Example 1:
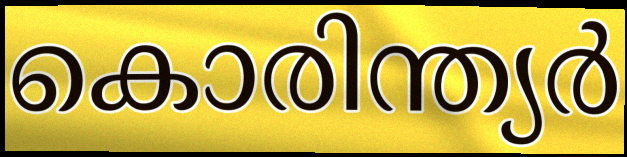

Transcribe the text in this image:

കൊരിന്ത്യർ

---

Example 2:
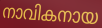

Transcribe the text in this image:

നാവികനായ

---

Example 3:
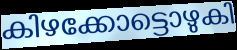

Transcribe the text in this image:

കിഴക്കോട്ടൊഴുകി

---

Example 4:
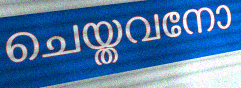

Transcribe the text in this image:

ചെയ്തവനോ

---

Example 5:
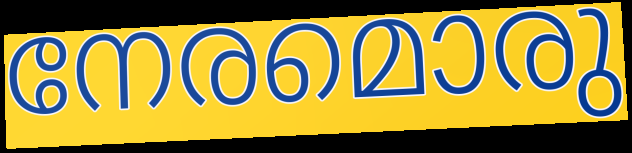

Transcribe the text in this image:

നേരമൊരു